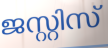
ജസ്റ്റിസ്